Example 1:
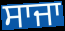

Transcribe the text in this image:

ਸਾਜਾ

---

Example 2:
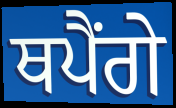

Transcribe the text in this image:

ਥਪੈਂਗੇ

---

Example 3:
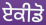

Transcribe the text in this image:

ਏਕੀਡੋ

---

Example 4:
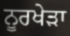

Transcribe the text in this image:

ਨੂਰਖੇੜਾ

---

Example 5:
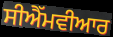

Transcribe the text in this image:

ਸੀਐੱਮਵੀਆਰ